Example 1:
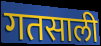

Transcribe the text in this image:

गतसाली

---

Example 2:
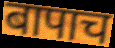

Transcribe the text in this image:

बापाच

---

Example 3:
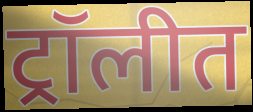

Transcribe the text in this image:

ट्रॉलीत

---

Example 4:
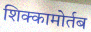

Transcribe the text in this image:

शिक्‍कामोर्तब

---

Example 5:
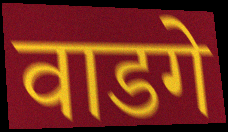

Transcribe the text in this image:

वाडगे